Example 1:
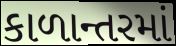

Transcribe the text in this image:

કાળાન્તરમાં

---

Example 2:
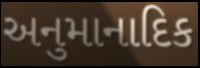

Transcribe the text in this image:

અનુમાનાદિક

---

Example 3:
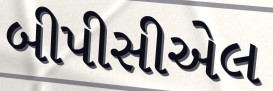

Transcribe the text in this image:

બીપીસીએલ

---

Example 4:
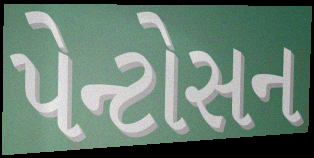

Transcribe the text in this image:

પેન્ટોસન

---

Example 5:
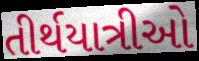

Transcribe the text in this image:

તીર્થયાત્રીઓ